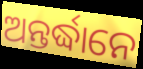
ଅନ୍ତର୍ଦ୍ଧାନେ